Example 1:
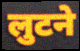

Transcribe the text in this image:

लुटने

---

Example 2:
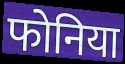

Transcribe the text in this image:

फोनिया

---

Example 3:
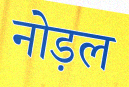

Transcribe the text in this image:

नोड़ल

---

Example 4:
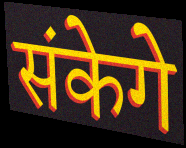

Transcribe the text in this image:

संकेगे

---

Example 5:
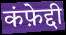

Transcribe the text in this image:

कंफ़ेद्दी